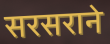
सरसराने